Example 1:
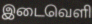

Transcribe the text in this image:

இடைவெளி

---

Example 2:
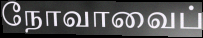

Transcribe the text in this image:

நோவாவைப்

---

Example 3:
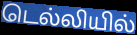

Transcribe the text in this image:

டெல்லியில்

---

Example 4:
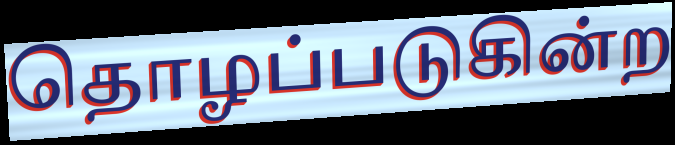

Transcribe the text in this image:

தொழப்படுகின்ற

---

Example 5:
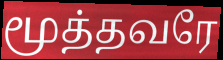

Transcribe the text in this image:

மூத்தவரே